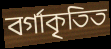
বৰ্গাকৃতিত